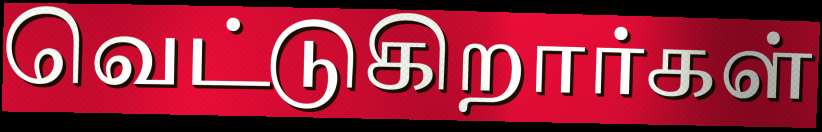
வெட்டுகிறார்கள்